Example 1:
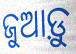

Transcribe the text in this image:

ଜୁଆଡ଼ୁ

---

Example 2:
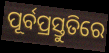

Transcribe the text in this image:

ପୂର୍ବପ୍ରସ୍ତୁତିରେ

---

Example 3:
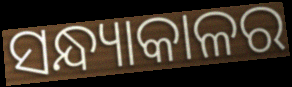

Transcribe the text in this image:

ସନ୍ଧ୍ୟାକାଳର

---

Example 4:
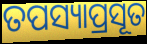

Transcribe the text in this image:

ତପସ୍ୟାପ୍ରସୂତ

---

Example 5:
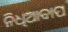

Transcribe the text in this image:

ନିଧିଆବାପ